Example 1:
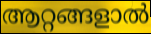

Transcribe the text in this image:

ആറ്റങ്ങളാൽ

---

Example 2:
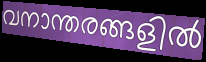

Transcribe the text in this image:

വനാന്തരങ്ങളിൽ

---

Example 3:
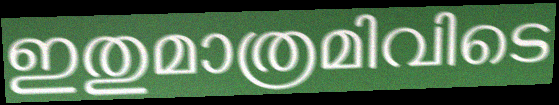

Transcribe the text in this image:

ഇതുമാത്രമിവിടെ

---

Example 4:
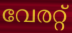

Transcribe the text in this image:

വേരറ്റ്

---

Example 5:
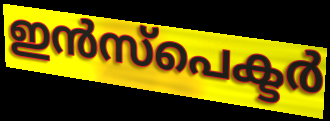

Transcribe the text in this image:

ഇൻസ്പെക്ടർ